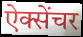
ऐक्सेंचर